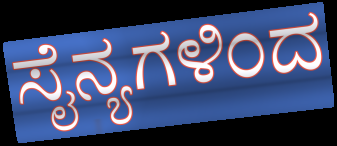
ಸೈನ್ಯಗಳಿಂದ